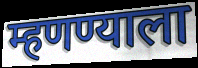
म्हणण्याला